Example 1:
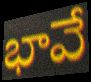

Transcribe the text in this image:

భావే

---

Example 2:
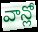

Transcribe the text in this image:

వాన్లో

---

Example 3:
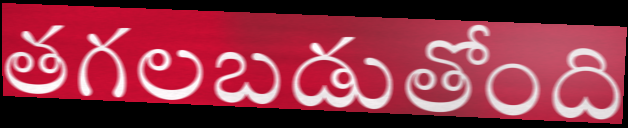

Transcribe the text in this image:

తగలబడుతోంది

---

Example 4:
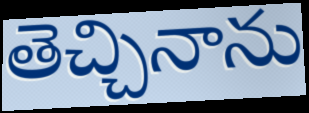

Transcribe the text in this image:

తెచ్చినాను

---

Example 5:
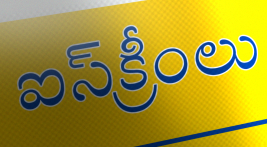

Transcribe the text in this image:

ఐస్‌క్రీంలు